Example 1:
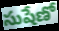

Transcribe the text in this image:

సుషేణో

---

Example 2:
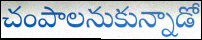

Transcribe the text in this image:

చంపాలనుకున్నాడో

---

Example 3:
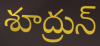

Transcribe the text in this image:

శూద్రున్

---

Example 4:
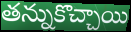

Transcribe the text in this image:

తన్నుకొచ్చాయి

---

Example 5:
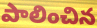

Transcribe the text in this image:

పాలించిన